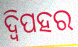
ଦ୍ୱିପହର